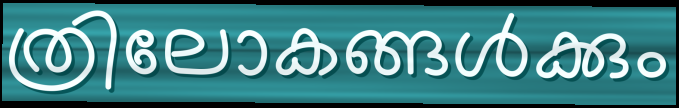
ത്രിലോകങ്ങൾക്കും